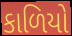
કાળિયો